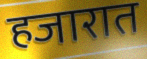
हजारात